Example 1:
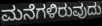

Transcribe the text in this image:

ಮನೆಗಳಿರುವುದು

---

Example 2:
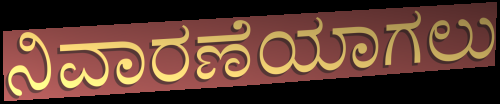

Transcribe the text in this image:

ನಿವಾರಣೆಯಾಗಲು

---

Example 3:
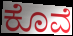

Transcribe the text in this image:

ಕೊವೆ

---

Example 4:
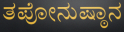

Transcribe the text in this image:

ತಪೋನುಷ್ಠಾನ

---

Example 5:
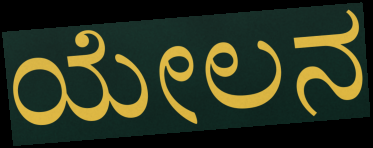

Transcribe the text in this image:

ಯೇಲನ